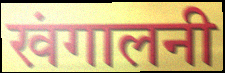
खंगालनी